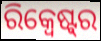
ରିକ୍ୱେଷ୍ଟ୍‌ର